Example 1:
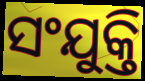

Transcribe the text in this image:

ସଂଯୁକ୍ତି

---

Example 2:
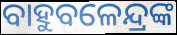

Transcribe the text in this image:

ବାହୁବଳେନ୍ଦ୍ରଙ୍କ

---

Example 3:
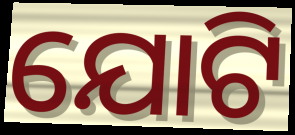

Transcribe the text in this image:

ଯୋଟି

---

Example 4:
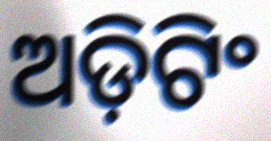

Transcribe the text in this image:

ଅଡ଼ିଟିଂ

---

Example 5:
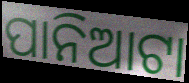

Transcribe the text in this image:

ପାନିଆଟା